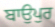
ਬਾਉਪੁਰ